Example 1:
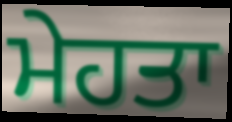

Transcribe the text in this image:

ਮੇਹਤਾ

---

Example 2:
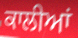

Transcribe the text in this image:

ਕਾਲੀਆਂ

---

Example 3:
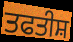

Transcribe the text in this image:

ਤਫਤੀਸ਼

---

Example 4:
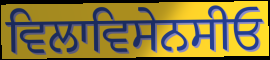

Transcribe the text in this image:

ਵਿਲਾਵਿਸੇਨਸੀਓ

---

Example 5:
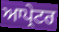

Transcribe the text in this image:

ਆਪ੍ਰੇਟਰ